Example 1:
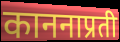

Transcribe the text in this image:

काननाप्रती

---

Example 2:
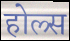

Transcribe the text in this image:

होल्स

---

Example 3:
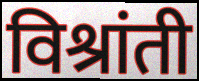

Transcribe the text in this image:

विश्रांती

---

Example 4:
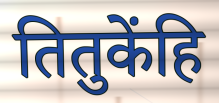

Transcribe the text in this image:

तितुकेंहि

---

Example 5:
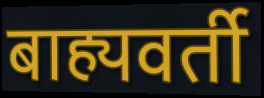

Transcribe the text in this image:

बाह्यवर्ती